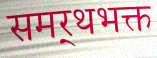
समर्थभक्त